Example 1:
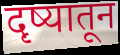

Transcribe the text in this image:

दृष्यातून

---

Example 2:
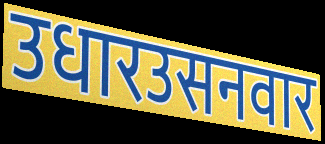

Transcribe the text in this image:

उधारउसनवार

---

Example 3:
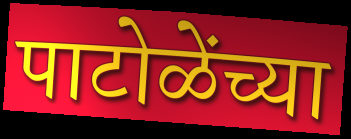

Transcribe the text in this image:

पाटोळेंच्या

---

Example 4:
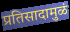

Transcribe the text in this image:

प्रतिसादामुळं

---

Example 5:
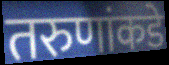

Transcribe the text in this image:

तरुणांकडे